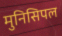
मुनिसिपल